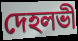
দেহলভী